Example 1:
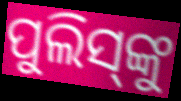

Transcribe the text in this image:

ପୁଲିସ୍‌ଙ୍କୁ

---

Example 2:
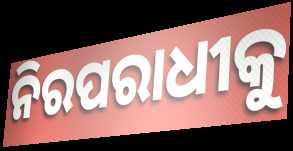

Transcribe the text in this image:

ନିରପରାଧୀକୁ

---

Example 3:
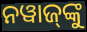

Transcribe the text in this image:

ନୱାଜ୍‍ଙ୍କୁ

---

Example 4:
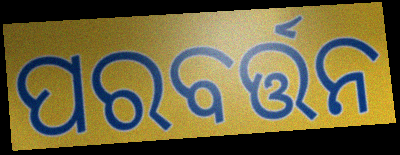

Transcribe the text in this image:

ପରବର୍ତ୍ତନ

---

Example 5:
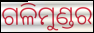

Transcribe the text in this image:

ଗଳିମୁଣ୍ଡର